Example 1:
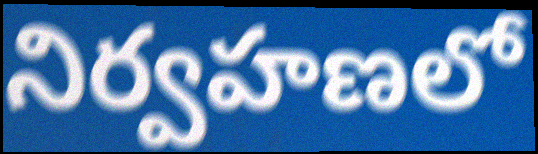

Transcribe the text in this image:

నిర్వహణలో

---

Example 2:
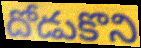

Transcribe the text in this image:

దోడుకొని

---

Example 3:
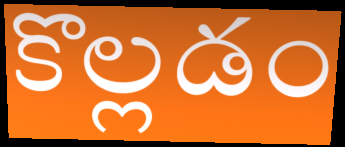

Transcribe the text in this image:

కొల్లడం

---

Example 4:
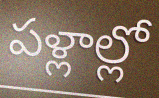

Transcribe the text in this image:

పళ్లాల్లో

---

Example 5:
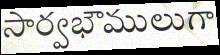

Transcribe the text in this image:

సార్వభౌములుగా